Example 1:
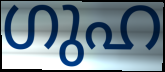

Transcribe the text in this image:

ഗുഹ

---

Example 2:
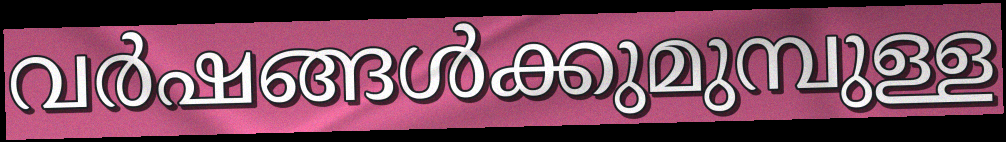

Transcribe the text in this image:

വർഷങ്ങൾക്കുമുമ്പുള്ള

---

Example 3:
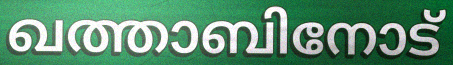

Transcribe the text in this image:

ഖത്താബിനോട്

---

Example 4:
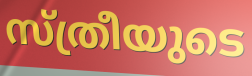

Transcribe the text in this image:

സ്ത്രീയുടെ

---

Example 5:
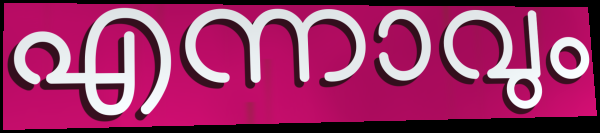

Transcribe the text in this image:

എന്നാവും